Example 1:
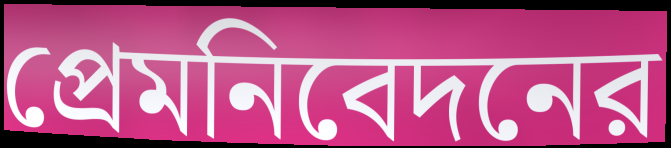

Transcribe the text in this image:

প্রেমনিবেদনের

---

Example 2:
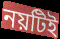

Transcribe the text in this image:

নয়টিই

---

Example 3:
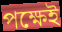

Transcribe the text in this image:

পক্ষেই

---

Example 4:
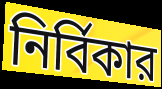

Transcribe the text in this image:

নির্বিকার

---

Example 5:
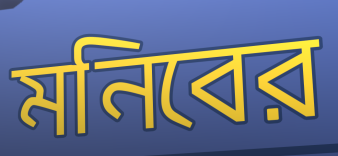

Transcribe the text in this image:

মনিবের